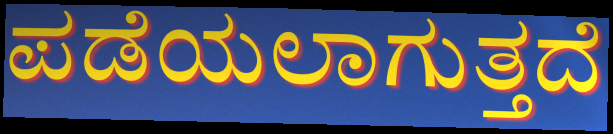
ಪಡೆಯಲಾಗುತ್ತದೆ